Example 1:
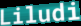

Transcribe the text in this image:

Liludi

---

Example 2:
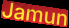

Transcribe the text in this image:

Jamun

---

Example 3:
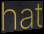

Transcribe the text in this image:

hat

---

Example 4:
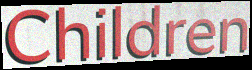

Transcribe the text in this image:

Children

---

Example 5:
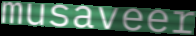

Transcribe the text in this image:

musaveer